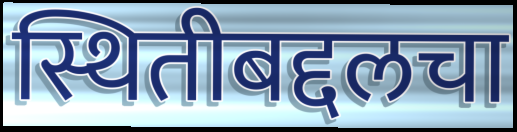
स्थितीबद्दलचा